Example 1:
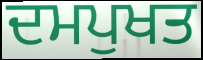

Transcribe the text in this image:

ਦਮਪੁਖਤ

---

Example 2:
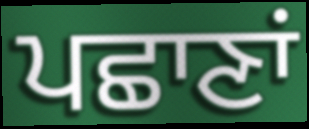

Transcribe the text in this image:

ਪਛਾਣਾਂ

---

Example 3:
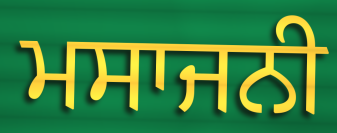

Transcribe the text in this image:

ਮਸਾਜਨੀ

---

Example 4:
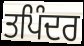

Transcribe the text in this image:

ਤਪਿੰਦਰ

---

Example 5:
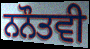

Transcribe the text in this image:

ਨਨੌਤਵੀ